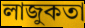
লাজুকতা